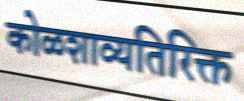
कोळशाव्यतिरिक्त